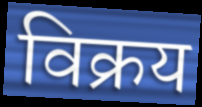
विक्रय